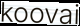
koovai